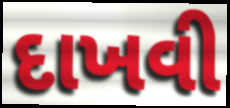
દાખવી